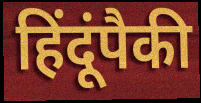
हिंदूंपैकी